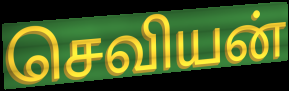
செவியன்